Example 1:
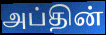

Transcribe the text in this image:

அப்தின்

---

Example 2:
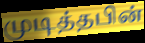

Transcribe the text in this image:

முடித்தபின்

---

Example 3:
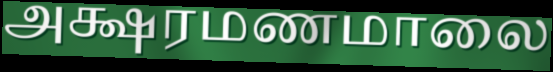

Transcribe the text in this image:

அக்ஷரமணமாலை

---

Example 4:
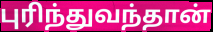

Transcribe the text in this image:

புரிந்துவந்தான்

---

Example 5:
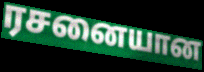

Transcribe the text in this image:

ரசனையான